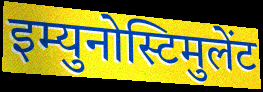
इम्युनोस्टिमुलेंट